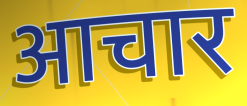
आचार